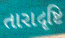
તારાદૃષ્ટિ